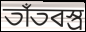
তাঁতবস্ত্র